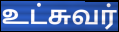
உட்சுவர்